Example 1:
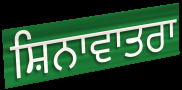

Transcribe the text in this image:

ਸ਼ਿਨਾਵਾਤਰਾ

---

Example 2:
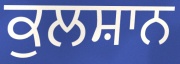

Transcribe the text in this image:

ਕੁਲਸ਼ਾਨ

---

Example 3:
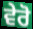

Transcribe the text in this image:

ਵੇਰੋ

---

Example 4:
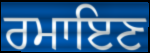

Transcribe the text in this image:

ਰਮਾਇਣ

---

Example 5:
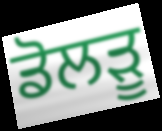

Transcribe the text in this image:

ਡੋਲੜੂ